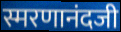
स्मरणानंदजी